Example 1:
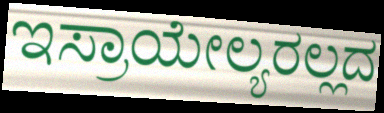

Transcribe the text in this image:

ಇಸ್ರಾಯೇಲ್ಯರಲ್ಲದ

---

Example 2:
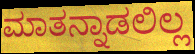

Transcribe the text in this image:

ಮಾತನ್ನಾಡಲಿಲ್ಲ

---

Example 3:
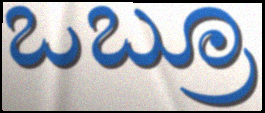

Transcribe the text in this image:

ಒಬ್ರೂ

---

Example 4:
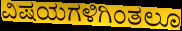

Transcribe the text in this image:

ವಿಷಯಗಳಿಗಿಂತಲೂ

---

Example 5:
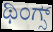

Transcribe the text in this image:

ಥಿಂಗ್ಸ್